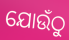
ଯୋଉଁଠୁ